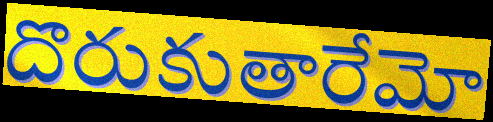
దొరుకుతారేమో